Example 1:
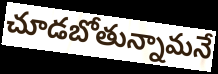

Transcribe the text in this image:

చూడబోతున్నామనే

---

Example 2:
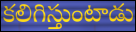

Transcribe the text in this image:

కలిగిస్తుంటాడు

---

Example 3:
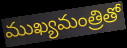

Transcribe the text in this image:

ముఖ్యమంత్రితో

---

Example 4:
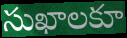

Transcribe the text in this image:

సుఖాలకూ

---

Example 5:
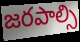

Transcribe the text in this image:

జరపాల్సి